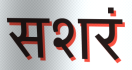
सशरं